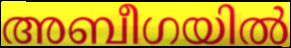
അബീഗയിൽ